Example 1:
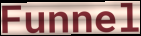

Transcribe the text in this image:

Funnel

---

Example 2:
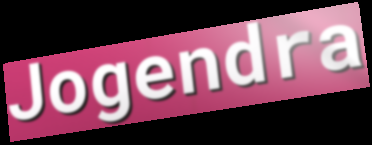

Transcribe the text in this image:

Jogendra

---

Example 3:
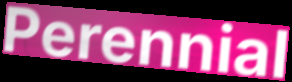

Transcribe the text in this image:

Perennial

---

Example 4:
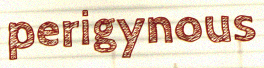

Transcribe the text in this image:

perigynous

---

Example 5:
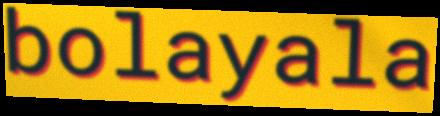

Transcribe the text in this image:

bolayala